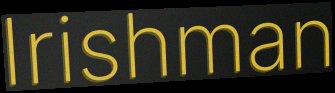
Irishman